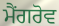
ਮੈਂਗਰੋਵ